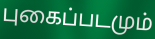
புகைப்படமும்